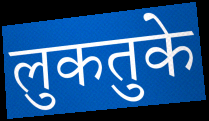
लुकतुके